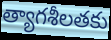
త్యాగశీలతకు